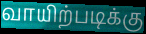
வாயிற்படிக்கு